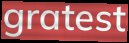
gratest